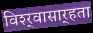
विश्र्वासार्हता